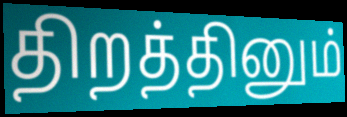
திறத்தினும்